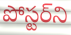
పోస్టర్‌ని